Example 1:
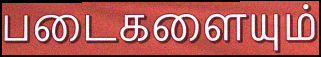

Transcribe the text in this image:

படைகளையும்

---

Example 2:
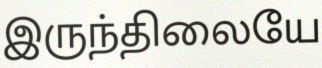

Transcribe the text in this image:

இருந்திலையே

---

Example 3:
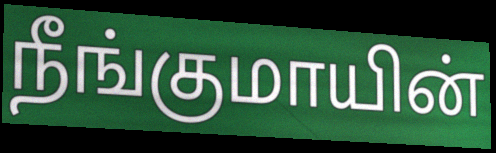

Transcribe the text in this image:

நீங்குமாயின்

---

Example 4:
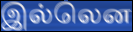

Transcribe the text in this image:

இல்லென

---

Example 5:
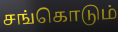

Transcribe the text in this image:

சங்கொடும்